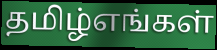
தமிழ்எங்கள்